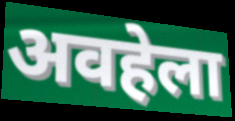
अवहेला